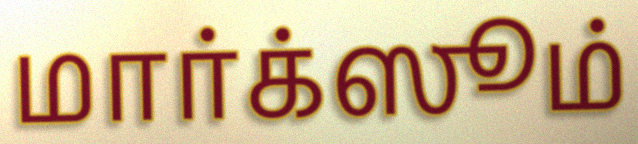
மார்க்ஸூம்